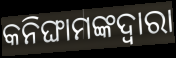
କନିଙ୍ଘାମଙ୍କଦ୍ଵାରା